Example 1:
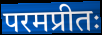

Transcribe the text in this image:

परमप्रीतः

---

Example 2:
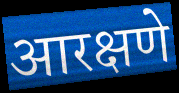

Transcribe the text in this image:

आरक्षणे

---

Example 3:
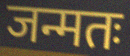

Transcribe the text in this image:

जन्मतः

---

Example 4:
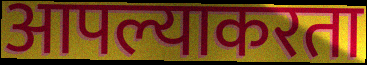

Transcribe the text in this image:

आपल्याकरता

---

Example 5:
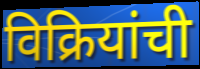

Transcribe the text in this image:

विक्रियांची